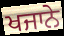
ਖਜਾਨੇ